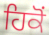
ਹਿਕੋਂ